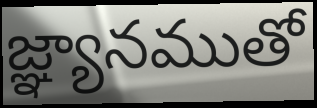
జ్ఞ్యానముతో